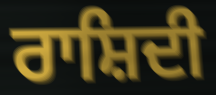
ਰਾਸ਼ਿਦੀ